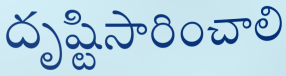
దృష్టిసారించాలి